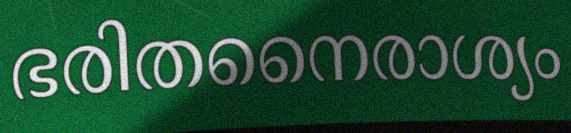
ഭരിതനൈരാശ്യം